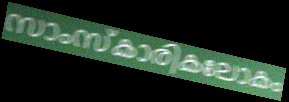
സാംസ്കാരികലോകം